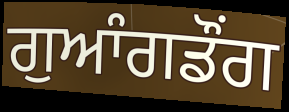
ਗੁਆੰਗਡੌਂਗ